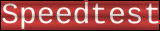
Speedtest